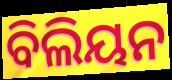
ବିଲିୟନ